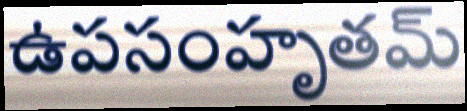
ఉపసంహృతమ్